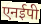
एनईपी